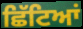
ਛਿੱਟਿਆਂ